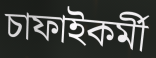
চাফাইকৰ্মী